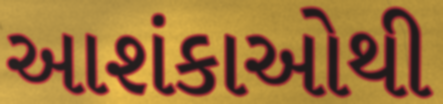
આશંકાઓથી